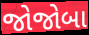
જોજોબા